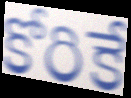
కోరికే